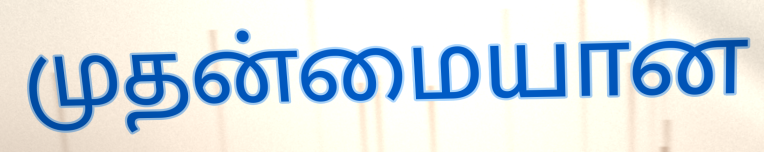
முதன்மையான